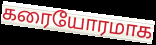
கரையோரமாக